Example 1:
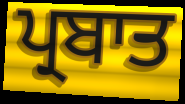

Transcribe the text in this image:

ਪ੍ਰਬਾਤ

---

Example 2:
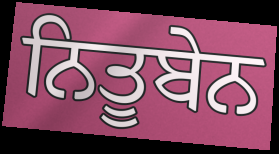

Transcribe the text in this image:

ਨਿਤੂਬੇਨ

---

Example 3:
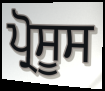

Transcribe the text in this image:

ਪ੍ਰੋਸੂਸ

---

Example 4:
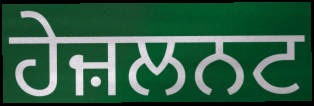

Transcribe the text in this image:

ਹੇਜ਼ਲਨਟ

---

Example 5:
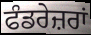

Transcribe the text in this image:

ਫੰਡਰੇਜ਼ਰਾਂ